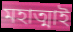
মহাত্মাই